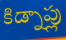
కిడ్నాప్లు